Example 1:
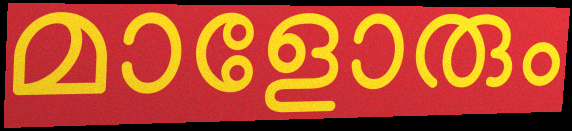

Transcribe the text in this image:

മാളോരും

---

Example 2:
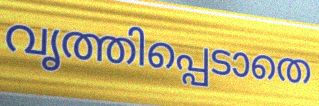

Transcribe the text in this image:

വൃത്തിപ്പെടാതെ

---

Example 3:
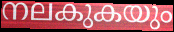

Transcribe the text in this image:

നലകുകയും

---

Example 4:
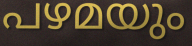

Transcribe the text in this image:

പഴമയും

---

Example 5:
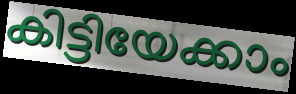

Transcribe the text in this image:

കിട്ടിയേക്കാം